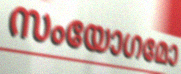
സംയോഗമോ